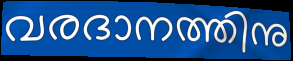
വരദാനത്തിനു